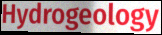
Hydrogeology